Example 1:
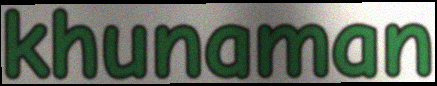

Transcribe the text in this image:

khunaman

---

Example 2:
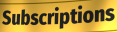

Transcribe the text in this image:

Subscriptions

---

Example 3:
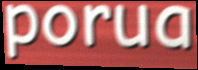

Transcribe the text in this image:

porua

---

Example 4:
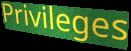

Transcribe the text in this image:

Privileges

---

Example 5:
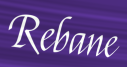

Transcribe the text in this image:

Rebane